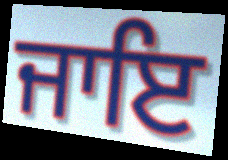
ਜਾਇ